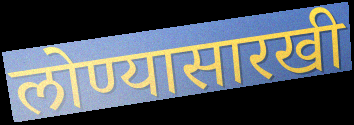
लोण्यासारखी